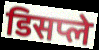
डिसप्ले